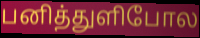
பனித்துளிபோல